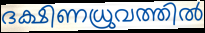
ദക്ഷിണധ്രുവത്തിൽ